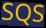
SQS